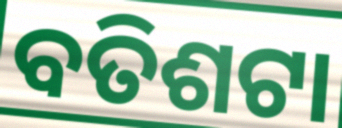
ବତିଶଟା